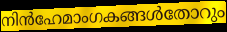
നിൻഹേമാംഗകങ്ങൾതോറും